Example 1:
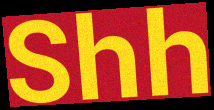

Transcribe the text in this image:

Shh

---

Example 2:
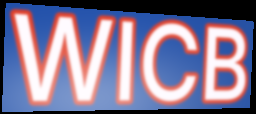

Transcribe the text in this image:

WICB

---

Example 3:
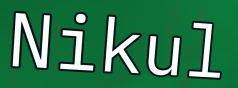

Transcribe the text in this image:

Nikul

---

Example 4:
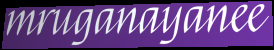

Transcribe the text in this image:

mruganayanee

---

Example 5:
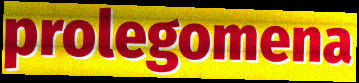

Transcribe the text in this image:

prolegomena